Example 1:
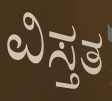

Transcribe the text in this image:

ವಿಸ್ತತ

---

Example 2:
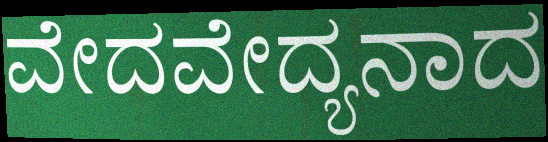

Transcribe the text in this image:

ವೇದವೇದ್ಯನಾದ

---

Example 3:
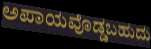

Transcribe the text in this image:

ಅಪಾಯವೊಡ್ಡಬಹುದು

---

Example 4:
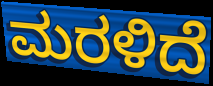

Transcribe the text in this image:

ಮರಳಿದೆ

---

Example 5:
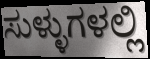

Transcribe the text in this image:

ಸುಳ್ಳುಗಳಲ್ಲಿ